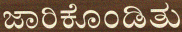
ಜಾರಿಕೊಂಡಿತು